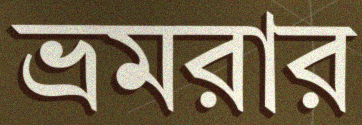
ভ্রমরার